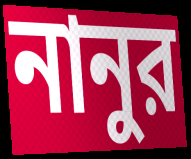
নানুর